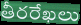
తీరరేఖలు